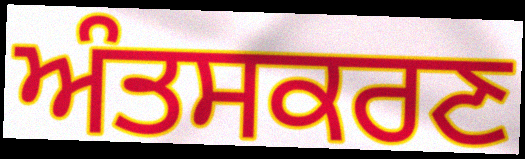
ਅੰਤਸਕਰਣ